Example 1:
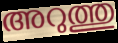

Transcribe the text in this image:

അറുത്തു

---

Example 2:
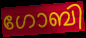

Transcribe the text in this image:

ഗോബി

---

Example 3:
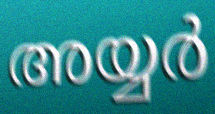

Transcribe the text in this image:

അയ്യർ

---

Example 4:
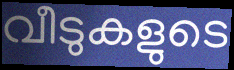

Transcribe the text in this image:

വീടുകളുടെ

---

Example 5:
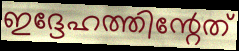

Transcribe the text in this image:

ഇദ്ദേഹത്തിന്റേത്